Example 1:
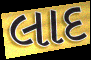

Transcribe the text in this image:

લાદ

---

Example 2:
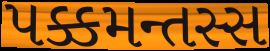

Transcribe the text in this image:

પક્કમન્તસ્સ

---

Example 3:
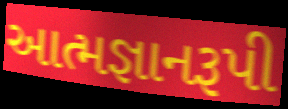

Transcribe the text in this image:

આત્મજ્ઞાનરૂપી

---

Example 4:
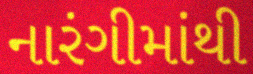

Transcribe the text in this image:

નારંગીમાંથી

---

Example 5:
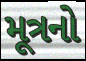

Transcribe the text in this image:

મૂત્રનો